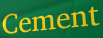
Cement